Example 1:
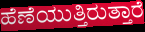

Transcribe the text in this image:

ಹೆಣೆಯುತ್ತಿರುತ್ತಾರೆ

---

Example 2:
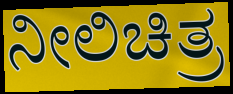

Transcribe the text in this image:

ನೀಲಿಚಿತ್ರ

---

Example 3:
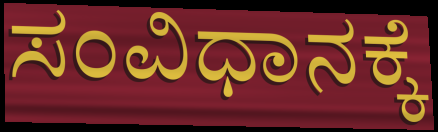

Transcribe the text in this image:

ಸಂವಿಧಾನಕ್ಕೆ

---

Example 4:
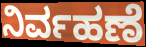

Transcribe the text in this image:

ನಿರ್ವಹಣೆ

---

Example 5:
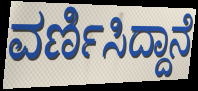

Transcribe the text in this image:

ವರ್ಣಿಸಿದ್ದಾನೆ